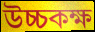
উচ্চকক্ষ